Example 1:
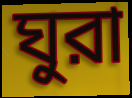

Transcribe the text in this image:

ঘুরা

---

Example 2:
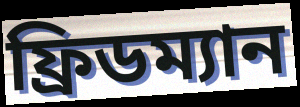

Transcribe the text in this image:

ফ্রিডম্যান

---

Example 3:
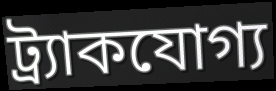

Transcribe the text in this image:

ট্র্যাকযোগ্য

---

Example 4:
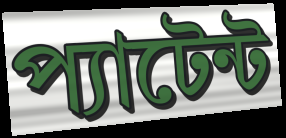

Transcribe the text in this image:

প্যাটেন্ট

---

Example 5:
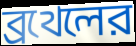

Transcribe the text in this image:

ব্রথেলের